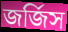
জর্জিস